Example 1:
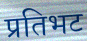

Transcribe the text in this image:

प्रतिभट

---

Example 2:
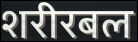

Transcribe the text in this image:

शरीरबल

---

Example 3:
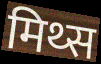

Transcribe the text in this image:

मिथ्स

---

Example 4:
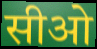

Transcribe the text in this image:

सीओ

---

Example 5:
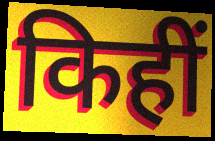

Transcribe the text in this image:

किहीं